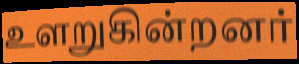
உளறுகின்றனர்